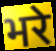
भरे